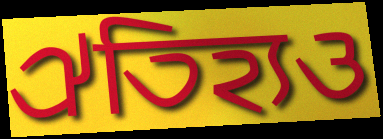
ঐতিহ্যও